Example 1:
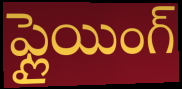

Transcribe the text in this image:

ఫ్లైయింగ్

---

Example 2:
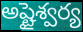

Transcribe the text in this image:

అష్టైశ్వర్య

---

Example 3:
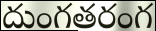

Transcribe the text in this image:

దుంగతరంగ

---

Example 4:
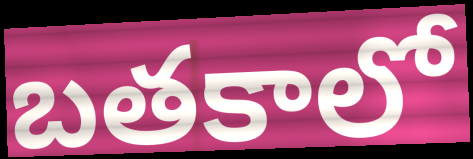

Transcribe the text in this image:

బతకాలో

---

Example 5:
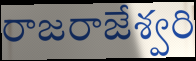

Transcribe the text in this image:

రాజరాజేశ్వరి